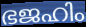
ഭജഹിം